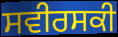
ਸਵੀਰਸਕੀ